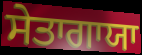
ਸੇਤਾਗਾਯਾ